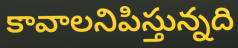
కావాలనిపిస్తున్నది